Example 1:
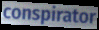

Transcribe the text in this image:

conspirator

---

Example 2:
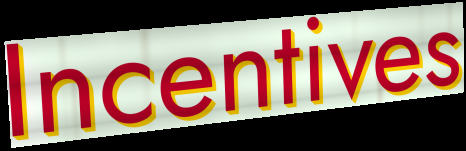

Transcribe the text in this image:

Incentives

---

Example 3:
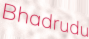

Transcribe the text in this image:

Bhadrudu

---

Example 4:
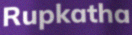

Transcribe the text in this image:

Rupkatha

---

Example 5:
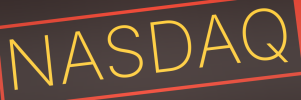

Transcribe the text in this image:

NASDAQ